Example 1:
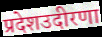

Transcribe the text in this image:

प्रदेशउदीरणा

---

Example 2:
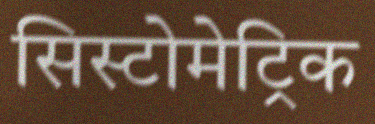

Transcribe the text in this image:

सिस्टोमेट्रिक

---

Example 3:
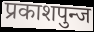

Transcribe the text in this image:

प्रकाशपुन्ज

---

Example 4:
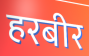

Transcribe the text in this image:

हरबीर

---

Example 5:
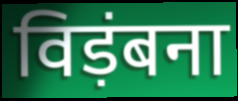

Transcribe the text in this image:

विड़ंबना